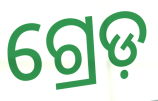
ଗ୍ରେଡ଼